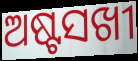
ଅଷ୍ଟସଖୀ